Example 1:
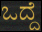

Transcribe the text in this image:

ಒದ್ದೆ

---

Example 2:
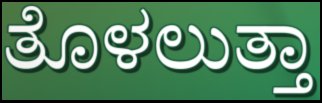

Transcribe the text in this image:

ತೊಳಲುತ್ತಾ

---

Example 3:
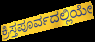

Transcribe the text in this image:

ಕ್ರಿಸ್ತಪೂರ್ವದಲ್ಲಿಯೇ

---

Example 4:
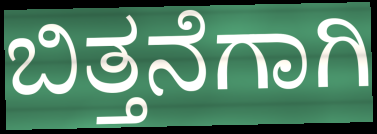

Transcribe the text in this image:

ಬಿತ್ತನೆಗಾಗಿ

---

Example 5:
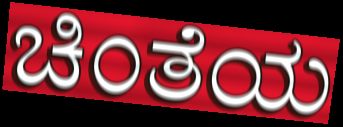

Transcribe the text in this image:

ಚಿಂತೆಯ